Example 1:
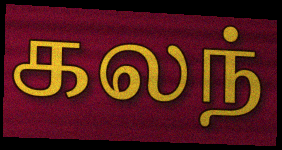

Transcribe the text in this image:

கலந்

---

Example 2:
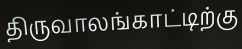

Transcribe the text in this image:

திருவாலங்காட்டிற்கு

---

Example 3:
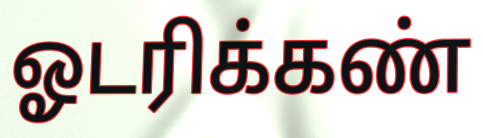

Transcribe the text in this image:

ஓடரிக்கண்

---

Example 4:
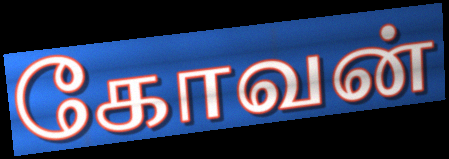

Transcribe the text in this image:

கோவன்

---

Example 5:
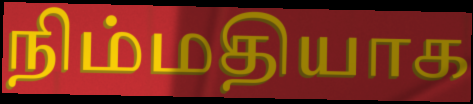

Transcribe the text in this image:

நிம்மதியாக